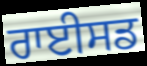
ਰਾਈਸਡ